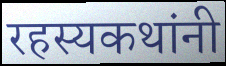
रहस्यकथांनी